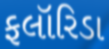
ફલૉરિડા